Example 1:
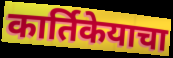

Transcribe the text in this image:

कार्तिकेयाचा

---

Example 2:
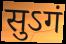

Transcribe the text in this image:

सुऽगं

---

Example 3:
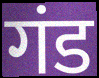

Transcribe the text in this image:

गंड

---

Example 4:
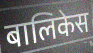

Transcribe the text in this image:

बालिकेस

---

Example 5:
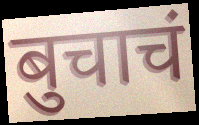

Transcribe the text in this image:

बुचाचं